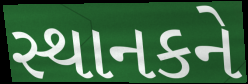
સ્થાનકને